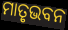
ମାତୃଭବନ